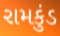
રામકુંડ